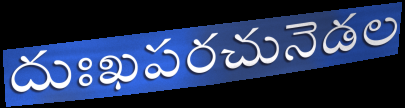
దుఃఖపరచునెడల